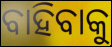
ବାହିବାକୁ